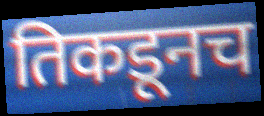
तिकडूनच